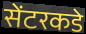
सेंटरकडे